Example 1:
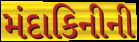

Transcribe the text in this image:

મંદાકિનીની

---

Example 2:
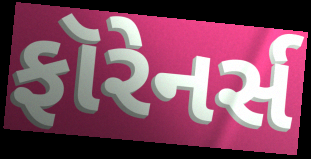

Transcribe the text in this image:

ફૉરેનર્સ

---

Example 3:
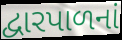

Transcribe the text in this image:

દ્વારપાળનાં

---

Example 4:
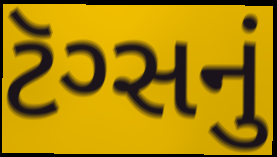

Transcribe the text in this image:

ટૅગ્સનું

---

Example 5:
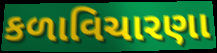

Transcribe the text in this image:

કળાવિચારણા